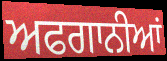
ਅਫਗਾਨੀਆਂ